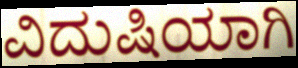
ವಿದುಷಿಯಾಗಿ